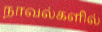
நாவல்களில்